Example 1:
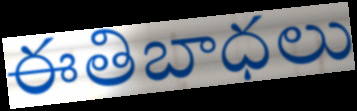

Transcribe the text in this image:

ఈతిబాధలు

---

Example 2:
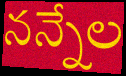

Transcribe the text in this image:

నన్నేల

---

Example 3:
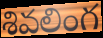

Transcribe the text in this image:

శివలింగ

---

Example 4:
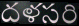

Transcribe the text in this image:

దళసరి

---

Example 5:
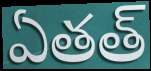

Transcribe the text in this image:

ఏతత్